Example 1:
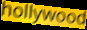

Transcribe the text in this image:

hollywood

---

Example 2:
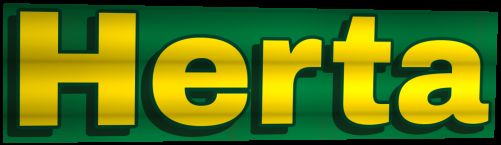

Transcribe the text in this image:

Herta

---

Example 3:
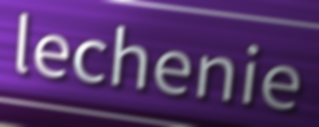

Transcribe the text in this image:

lechenie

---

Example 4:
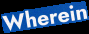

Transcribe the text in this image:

Wherein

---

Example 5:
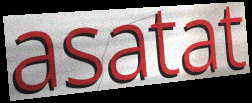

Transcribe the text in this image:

asatat